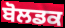
ਬੋਲਡਕ